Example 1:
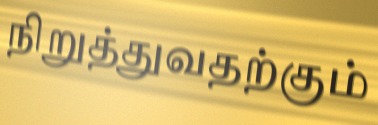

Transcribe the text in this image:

நிறுத்துவதற்கும்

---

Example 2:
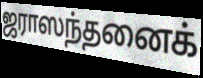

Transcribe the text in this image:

ஜராஸந்தனைக்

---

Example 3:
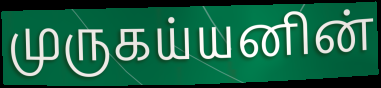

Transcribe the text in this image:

முருகய்யனின்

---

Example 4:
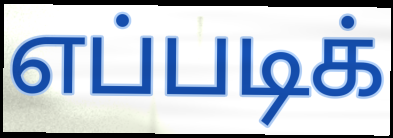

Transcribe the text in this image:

எப்படிக்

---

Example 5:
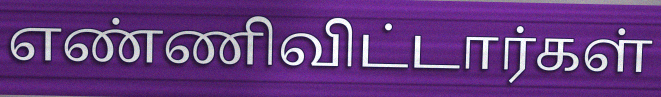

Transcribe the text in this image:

எண்ணிவிட்டார்கள்